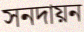
সনদায়ন